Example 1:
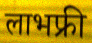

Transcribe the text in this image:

लाभफ्री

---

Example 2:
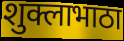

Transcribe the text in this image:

शुक्लाभाठा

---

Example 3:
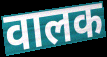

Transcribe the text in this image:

वालक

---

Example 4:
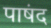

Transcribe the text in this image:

पाषंद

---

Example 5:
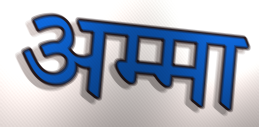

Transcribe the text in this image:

अम्‍मा